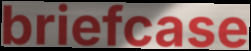
briefcase